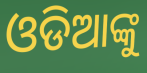
ଓଡିଆଙ୍କୁ